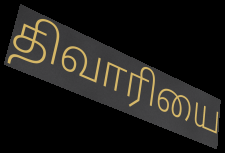
திவாரியை